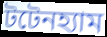
টটেনহ্যাম